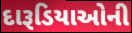
દારૂડિયાઓની